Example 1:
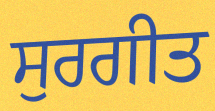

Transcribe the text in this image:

ਸੁਰਗੀਤ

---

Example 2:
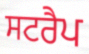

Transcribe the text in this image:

ਸਟਰੈਪ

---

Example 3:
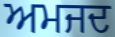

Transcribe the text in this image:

ਅਮਜਦ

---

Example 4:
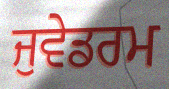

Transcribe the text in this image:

ਜੁਵੇਡਰਮ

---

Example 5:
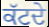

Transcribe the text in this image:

ਕੱਟਦੇ